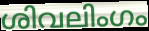
ശിവലിംഗം